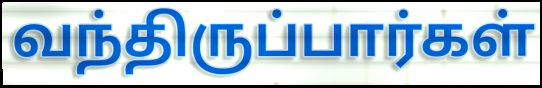
வந்திருப்பார்கள்